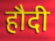
हौदी